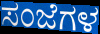
ಸಂಜೆಗಳ